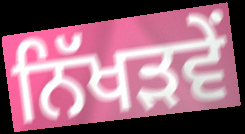
ਨਿੱਖੜਵੇਂ